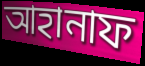
আহানাফ